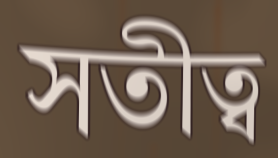
সতীত্ব